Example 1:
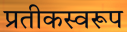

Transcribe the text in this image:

प्रतीकस्वरूप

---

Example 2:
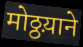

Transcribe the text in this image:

मोठ्ठय़ाने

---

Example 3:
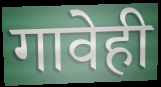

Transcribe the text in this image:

गावेही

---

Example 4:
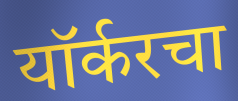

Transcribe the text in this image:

यॉर्करचा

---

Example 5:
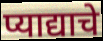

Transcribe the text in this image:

प्याद्याचे